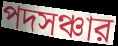
পদসঞ্চার